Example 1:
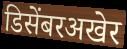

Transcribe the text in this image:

डिसेंबरअखेर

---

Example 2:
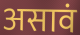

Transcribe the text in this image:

असावं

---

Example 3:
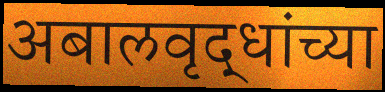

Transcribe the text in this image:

अबालवृद्धांच्या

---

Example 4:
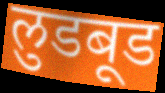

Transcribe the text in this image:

लुडबूड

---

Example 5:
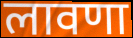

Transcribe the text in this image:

लावणा